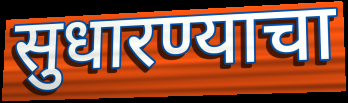
सुधारण्याचा